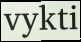
vykti